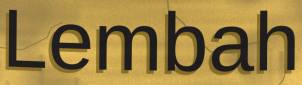
Lembah